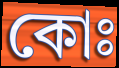
কোঃ